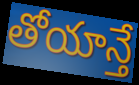
తోయాన్తే